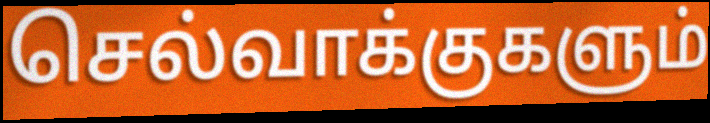
செல்வாக்குகளும்